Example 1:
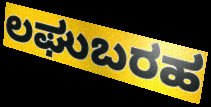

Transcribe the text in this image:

ಲಘುಬರಹ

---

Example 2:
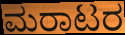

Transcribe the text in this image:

ಮರಾಟರ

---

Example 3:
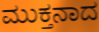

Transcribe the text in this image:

ಮುಕ್ತನಾದ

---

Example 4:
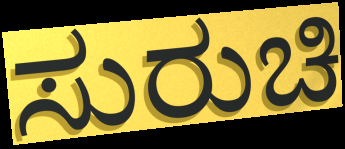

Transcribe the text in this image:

ಸುರುಚಿ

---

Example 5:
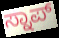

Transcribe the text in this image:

ಸ್ನಾಪ್